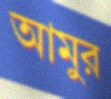
আমুর